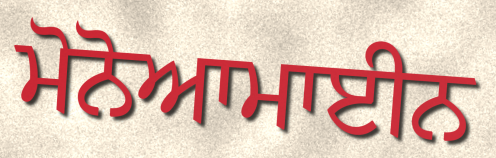
ਮੋਨੋਆਮਾਈਨ